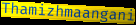
Thamizhmaangani